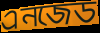
এনজেড